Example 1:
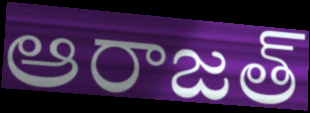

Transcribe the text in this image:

ఆరాజత్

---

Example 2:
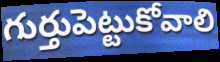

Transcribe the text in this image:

గుర్తుపెట్టుకోవాలి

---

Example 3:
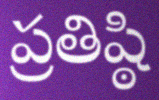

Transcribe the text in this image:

ప్రతిష్ఠి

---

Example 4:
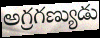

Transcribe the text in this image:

అగ్రగణ్యుడు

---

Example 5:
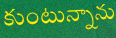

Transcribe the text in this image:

కుంటున్నాను